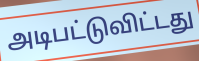
அடிபட்டுவிட்டது